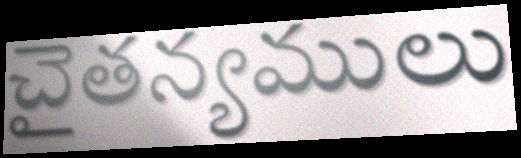
చైతన్యములు